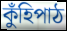
কুঁহিপাঠ